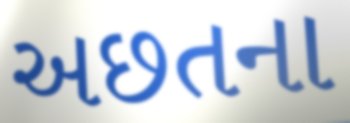
અછતના